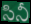
సినీ